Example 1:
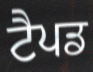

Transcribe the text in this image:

ਟੈਪਡ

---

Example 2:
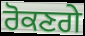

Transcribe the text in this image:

ਰੋਕਣਗੇ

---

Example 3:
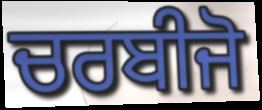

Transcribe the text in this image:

ਚਰਬੀਜੋ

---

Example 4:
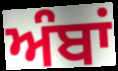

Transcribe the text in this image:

ਅੰਬਾਂ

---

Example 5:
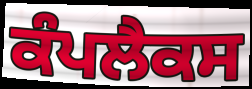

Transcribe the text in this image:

ਕੰਪਲੈਕਸ